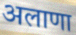
अलाणा